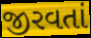
જીરવતાં